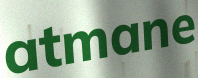
atmane